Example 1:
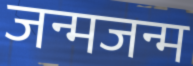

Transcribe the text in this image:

जन्मजन्म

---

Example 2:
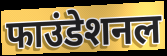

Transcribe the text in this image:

फाउंडेशनल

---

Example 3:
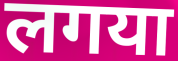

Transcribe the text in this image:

लगया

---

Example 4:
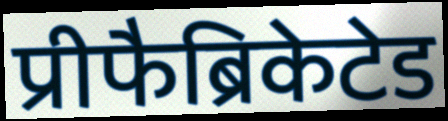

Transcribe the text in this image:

प्रीफैब्रिकेटेड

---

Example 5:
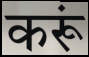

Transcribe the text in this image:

करूं